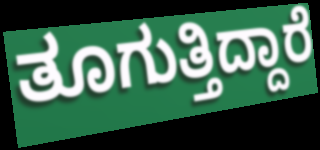
ತೂಗುತ್ತಿದ್ದಾರೆ